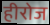
हीरोज